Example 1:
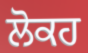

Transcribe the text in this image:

ਲੋਕਹ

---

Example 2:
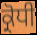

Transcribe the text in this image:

ਕ੍ਰੋਧੀ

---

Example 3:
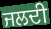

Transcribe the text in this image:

ਜਲਦੀ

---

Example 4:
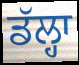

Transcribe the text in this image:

ਡੱਲ੍ਹਾ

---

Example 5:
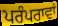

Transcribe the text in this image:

ਪਰੰਪਰਾਵਾਂ